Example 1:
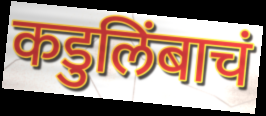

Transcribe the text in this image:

कडुलिंबाचं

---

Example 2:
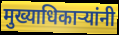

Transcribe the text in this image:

मुख्याधिकाऱ्यांनी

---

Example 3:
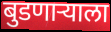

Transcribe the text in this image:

बुडणाऱ्याला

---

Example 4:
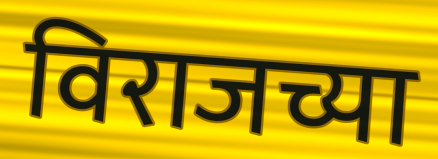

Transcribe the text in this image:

विराजच्या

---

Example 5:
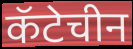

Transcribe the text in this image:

कॅटेचीन